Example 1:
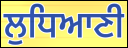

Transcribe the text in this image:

ਲੁਧਿਆਣੀ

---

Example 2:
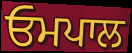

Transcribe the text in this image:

ਓਮਪਾਲ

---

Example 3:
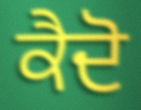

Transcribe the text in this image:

ਕੈਦੋ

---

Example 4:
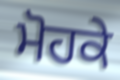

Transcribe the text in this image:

ਮੋਹਕੇ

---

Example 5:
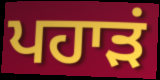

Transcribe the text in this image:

ਪਹਾੜਂ